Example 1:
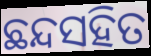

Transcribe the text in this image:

ଛନ୍ଦସହିତ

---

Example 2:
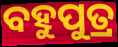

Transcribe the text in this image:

ବହୁପୁତ୍ର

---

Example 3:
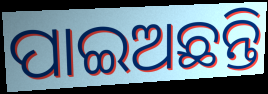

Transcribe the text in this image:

ପାଇଅଛନ୍ତି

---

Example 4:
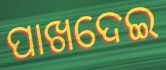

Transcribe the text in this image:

ପାଖଦେଇ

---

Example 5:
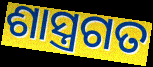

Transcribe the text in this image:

ଶାସ୍ତ୍ରଗତ